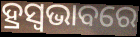
ହ୍ରସ୍ୱଭାବରେ